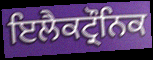
ਇਲੈਕਟ੍ਰੌਨਿਕ